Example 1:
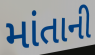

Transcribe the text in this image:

માંતાની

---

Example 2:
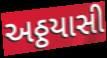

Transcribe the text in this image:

અઠ્ઠયાસી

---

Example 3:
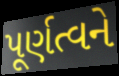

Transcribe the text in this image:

પૂર્ણત્વને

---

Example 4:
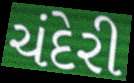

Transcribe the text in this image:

ચંદેરી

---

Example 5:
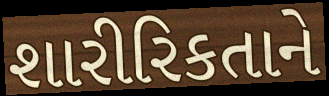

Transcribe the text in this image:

શારીરિકતાને